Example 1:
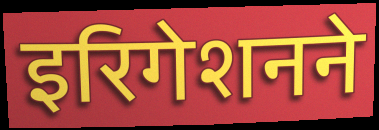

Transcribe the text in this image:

इरिगेशनने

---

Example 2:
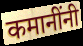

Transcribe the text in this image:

कमानींनी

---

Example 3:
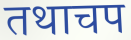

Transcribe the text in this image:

तथाचप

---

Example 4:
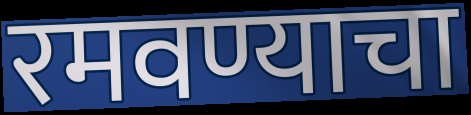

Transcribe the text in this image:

रमवण्याचा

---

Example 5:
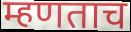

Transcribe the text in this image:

म्हणताच